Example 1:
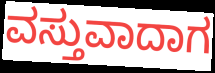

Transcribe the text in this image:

ವಸ್ತುವಾದಾಗ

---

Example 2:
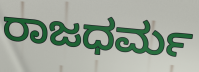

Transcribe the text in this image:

ರಾಜಧರ್ಮ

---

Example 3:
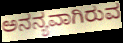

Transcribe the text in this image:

ಅನನ್ಯವಾಗಿರುವ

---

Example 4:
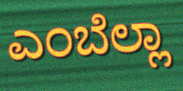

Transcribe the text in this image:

ಎಂಬೆಲ್ಲಾ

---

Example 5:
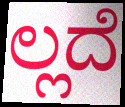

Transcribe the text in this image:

ಲ್ಲದೆ